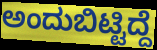
ಅಂದುಬಿಟ್ಟಿದ್ದೆ